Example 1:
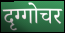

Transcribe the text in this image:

दृग्गोचर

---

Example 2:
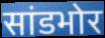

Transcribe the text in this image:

सांडभोर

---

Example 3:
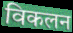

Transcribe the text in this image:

विकलन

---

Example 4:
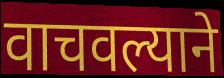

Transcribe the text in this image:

वाचवल्याने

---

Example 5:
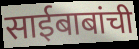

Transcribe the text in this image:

साईबाबांची